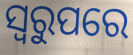
ସ୍ୱରୁପରେ